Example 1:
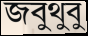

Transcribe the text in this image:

জবুথুবু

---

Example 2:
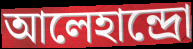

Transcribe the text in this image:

আলেহান্দ্রো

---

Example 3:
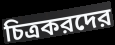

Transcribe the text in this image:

চিত্রকরদের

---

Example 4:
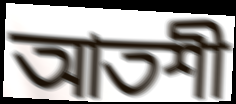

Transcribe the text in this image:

আতশী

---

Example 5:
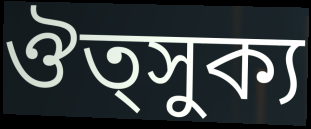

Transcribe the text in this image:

ঔত্সুক্য